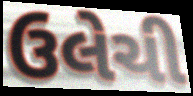
ઉલેચી